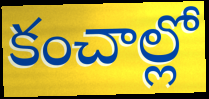
కంచాల్లో